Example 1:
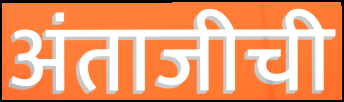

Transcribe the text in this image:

अंताजीची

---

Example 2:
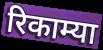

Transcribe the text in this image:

रिकाम्या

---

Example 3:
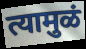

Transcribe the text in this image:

त्यामुळं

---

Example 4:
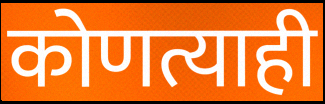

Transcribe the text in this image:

कोणत्याही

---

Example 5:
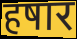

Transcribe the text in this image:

हषार